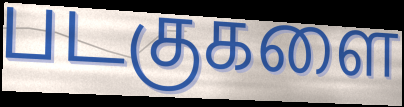
படகுகளை